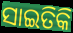
ସାଇତିକି